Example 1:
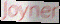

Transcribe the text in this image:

Joyner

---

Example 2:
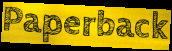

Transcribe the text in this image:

Paperback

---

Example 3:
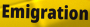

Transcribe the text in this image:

Emigration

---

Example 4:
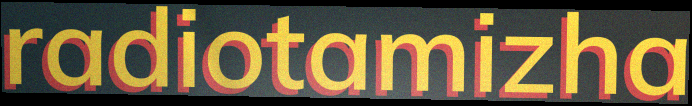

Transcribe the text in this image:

radiotamizha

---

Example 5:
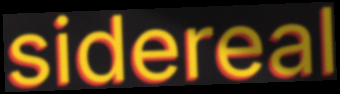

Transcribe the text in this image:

sidereal